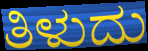
ತಿಳುದು